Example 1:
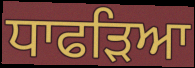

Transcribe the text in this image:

ਧਾਫੜਿਆ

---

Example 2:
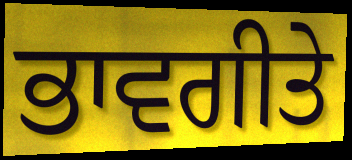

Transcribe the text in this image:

ਭਾਵਗੀਤੇ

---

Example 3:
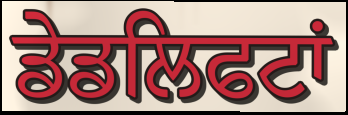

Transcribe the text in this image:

ਡੇਡਲਿਫਟਾਂ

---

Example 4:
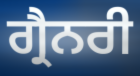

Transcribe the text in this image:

ਗ੍ਰੈਨਰੀ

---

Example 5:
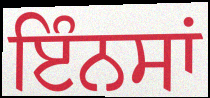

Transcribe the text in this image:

ਇੰਨਸਾਂ